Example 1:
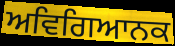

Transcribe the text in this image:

ਅਵਿਗਿਆਨਕ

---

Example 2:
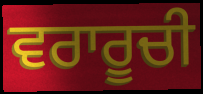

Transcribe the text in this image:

ਵਰਾਰੂਚੀ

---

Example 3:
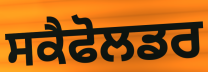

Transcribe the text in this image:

ਸਕੈਫੋਲਡਰ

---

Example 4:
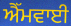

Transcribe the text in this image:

ਐੱਮਵਾਈ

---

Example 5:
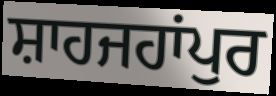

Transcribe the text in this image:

ਸ਼ਾਹਜਹਾਂਪੁਰ